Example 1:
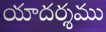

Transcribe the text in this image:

యాదర్శము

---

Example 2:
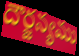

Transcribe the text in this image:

దౌర్జన్యము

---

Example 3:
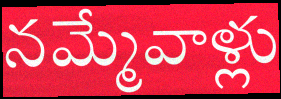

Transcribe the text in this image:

నమ్మేవాళ్లు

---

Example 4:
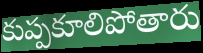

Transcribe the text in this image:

కుప్పకూలిపోతారు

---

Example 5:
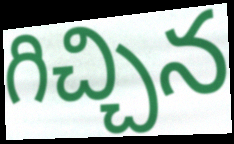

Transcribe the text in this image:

గిచ్చిన